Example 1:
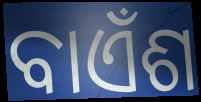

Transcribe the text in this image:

ବାଏଁଶ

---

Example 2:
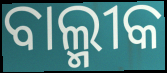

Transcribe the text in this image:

ବାଲ୍ମୀକ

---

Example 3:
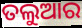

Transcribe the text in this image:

ତଲୁଆର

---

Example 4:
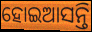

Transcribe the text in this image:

ହୋଇଆସନ୍ତି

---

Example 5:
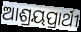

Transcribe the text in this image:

ଆଶ୍ରୟପ୍ରାର୍ଥୀ